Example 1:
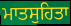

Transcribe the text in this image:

ਮਾਤਸੁਹਿਤਾ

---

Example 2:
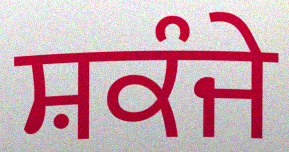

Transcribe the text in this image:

ਸ਼ਕੰਜੇ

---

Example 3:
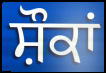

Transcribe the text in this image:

ਸ਼ੌਕਾਂ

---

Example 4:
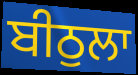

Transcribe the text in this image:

ਬੀਠੁਲਾ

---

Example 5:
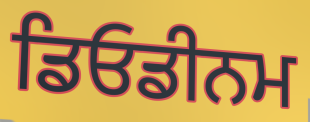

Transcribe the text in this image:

ਡਿਓਡੀਨਮ